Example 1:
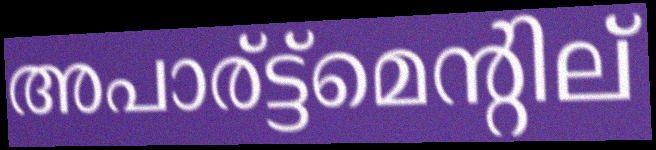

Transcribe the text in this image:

അപാര്ട്ട്മെന്റില്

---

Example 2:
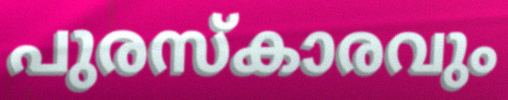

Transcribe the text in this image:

പുരസ്കാരവും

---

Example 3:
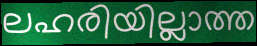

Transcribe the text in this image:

ലഹരിയില്ലാത്ത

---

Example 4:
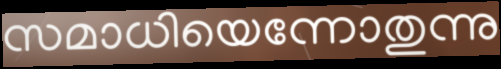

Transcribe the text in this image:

സമാധിയെന്നോതുന്നു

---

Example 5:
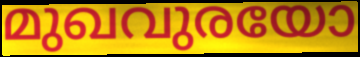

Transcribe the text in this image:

മുഖവുരയോ